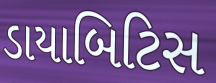
ડાયાબિટિસ